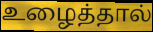
உழைத்தால்